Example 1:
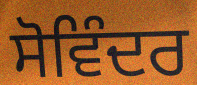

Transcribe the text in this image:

ਸੋਵਿੰਦਰ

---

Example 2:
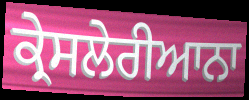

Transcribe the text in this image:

ਕ੍ਰੇਸਲੇਰੀਆਨਾ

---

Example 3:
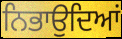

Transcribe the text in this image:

ਨਿਭਾਉਦਿਆਂ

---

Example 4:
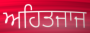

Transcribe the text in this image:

ਅਹਿਤਜਾਜ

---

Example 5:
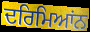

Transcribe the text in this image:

ਦਰਿਮਿਆਂਨ